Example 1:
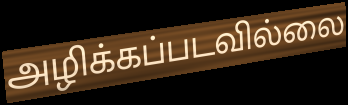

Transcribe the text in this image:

அழிக்கப்படவில்லை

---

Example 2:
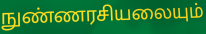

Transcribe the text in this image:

நுண்ணரசியலையும்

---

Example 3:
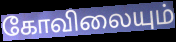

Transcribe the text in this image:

கோவிலையும்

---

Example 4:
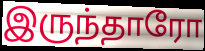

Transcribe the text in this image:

இருந்தாரோ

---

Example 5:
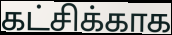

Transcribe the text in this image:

கட்சிக்காக